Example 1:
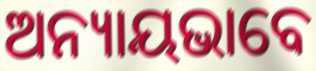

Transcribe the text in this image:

ଅନ୍ୟାୟଭାବେ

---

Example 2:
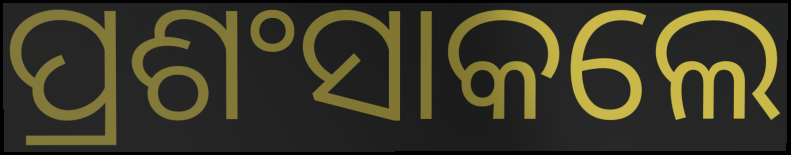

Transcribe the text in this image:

ପ୍ରଶଂସାକଲେ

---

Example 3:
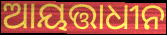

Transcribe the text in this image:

ଆୟତ୍ତାଧୀନ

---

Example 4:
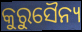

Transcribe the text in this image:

କୁରୁସୈନ୍ୟ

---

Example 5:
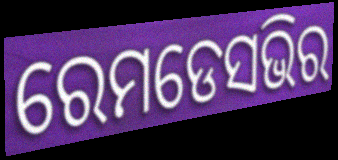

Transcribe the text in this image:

ରେମଡେସଭିର